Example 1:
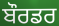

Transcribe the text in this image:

ਬੌਰਡਰ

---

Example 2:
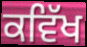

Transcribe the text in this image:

ਕਵਿੱਖ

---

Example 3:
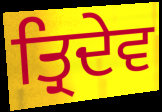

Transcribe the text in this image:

ਤ੍ਰਿਦੇਵ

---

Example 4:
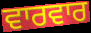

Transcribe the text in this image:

ਵਾਰਵਾਰ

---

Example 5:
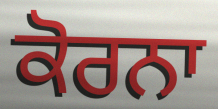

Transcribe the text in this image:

ਕੋਰਨਾ